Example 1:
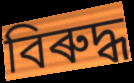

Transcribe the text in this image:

বিৰুদ্ধ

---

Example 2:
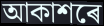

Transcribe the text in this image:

আকাশৰে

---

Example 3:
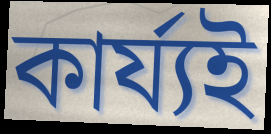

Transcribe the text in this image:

কাৰ্য্যই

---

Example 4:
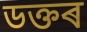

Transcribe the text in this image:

ডক্তৰ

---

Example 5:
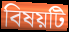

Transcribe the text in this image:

বিষয়টি